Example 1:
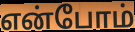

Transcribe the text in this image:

என்போம்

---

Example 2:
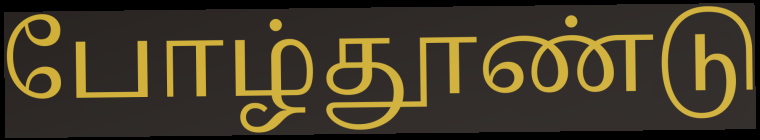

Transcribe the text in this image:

போழ்தூண்டு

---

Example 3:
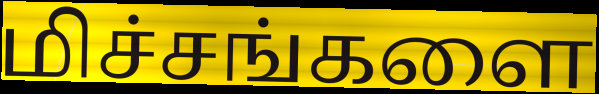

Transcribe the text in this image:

மிச்சங்களை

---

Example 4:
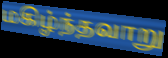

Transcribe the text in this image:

மகிழ்ந்தவாறு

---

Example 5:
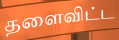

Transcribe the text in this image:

தளைவிட்ட